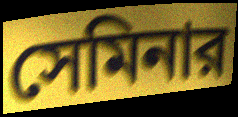
সেমিনার